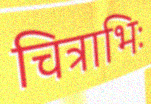
चित्राभिः